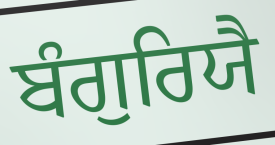
ਬੰਗੁਰਿਯੈ